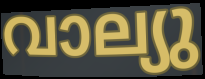
വാല്യു